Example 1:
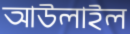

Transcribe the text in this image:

আউলাইল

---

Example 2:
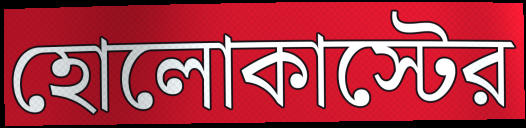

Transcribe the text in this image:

হোলোকাস্টের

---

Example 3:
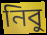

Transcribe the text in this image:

নিবু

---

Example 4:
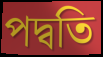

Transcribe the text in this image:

পদ্বতি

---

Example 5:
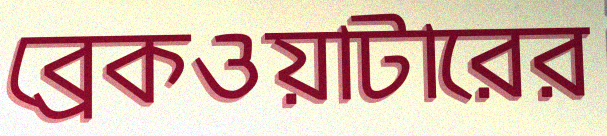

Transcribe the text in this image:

ব্রেকওয়াটারের